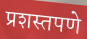
प्रशस्तपणे